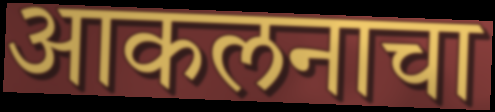
आकलनाचा